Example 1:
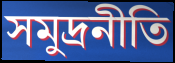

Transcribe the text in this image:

সমুদ্রনীতি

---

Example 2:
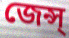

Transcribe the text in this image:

জেন্স্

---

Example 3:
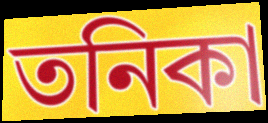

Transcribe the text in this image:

তনিকা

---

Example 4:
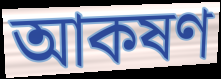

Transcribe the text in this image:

আকষণ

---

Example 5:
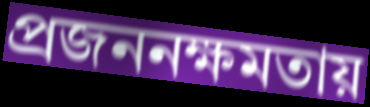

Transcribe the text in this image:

প্রজননক্ষমতায়